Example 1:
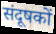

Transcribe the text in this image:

संदूषकों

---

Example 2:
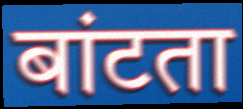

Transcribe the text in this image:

बांटता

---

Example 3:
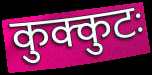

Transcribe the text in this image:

कुक्कुटः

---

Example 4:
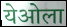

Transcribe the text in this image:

येओला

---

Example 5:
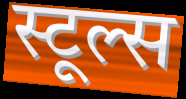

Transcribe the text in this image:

स्टूल्स